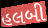
હલબી